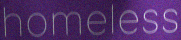
homeless